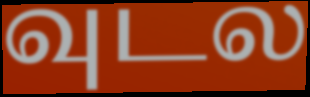
வுடல